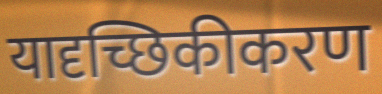
यादृच्छिकीकरण